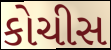
કોચીસ